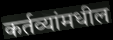
कर्तव्यांमधील